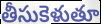
తీసుకెళుతూ